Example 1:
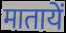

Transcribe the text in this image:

मातायें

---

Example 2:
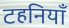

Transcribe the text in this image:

टहनियाँ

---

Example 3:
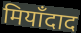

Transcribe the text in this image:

मियाँदाद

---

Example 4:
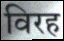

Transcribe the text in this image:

विरह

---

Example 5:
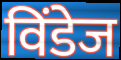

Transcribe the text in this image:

विंडेज